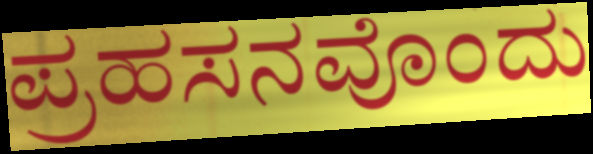
ಪ್ರಹಸನವೊಂದು